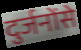
दुर्जनोंसे